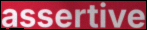
assertive